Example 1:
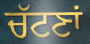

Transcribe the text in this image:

ਚੱਟਣਾਂ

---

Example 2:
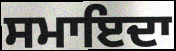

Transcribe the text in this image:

ਸਮਾਇਦਾ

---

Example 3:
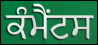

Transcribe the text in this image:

ਕੰਮੈਂਟਸ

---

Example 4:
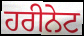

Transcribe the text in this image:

ਹਰੀਨੇਟ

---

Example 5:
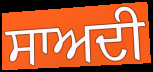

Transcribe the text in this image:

ਸਾਅਦੀ